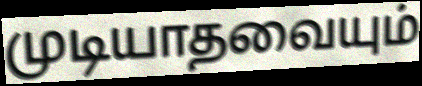
முடியாதவையும்